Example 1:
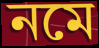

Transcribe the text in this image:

নমে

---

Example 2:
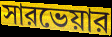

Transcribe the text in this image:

সারভেয়ার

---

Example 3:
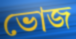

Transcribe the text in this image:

ভোজ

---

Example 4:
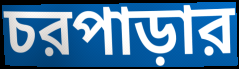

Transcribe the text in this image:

চরপাড়ার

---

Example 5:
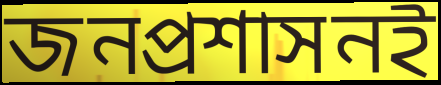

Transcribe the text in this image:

জনপ্রশাসনই